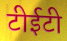
टीईटी